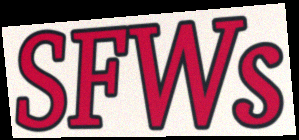
SFWs